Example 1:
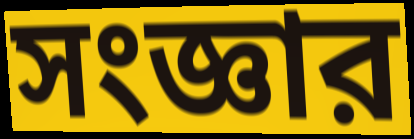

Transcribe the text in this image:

সংজ্ঞার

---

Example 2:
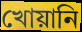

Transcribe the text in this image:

খোয়ানি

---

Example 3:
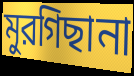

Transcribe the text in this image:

মুরগিছানা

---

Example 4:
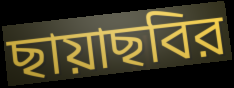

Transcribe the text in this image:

ছায়াছবির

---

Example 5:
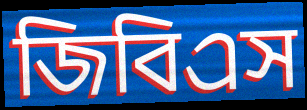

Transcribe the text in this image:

জিবিএস